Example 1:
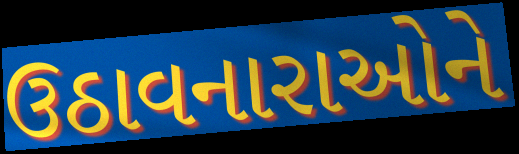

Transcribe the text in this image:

ઉઠાવનારાઓને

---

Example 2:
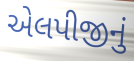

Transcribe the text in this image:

એલપીજીનું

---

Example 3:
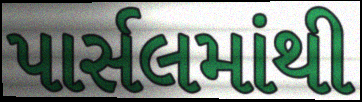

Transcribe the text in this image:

પાર્સલમાંથી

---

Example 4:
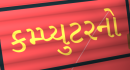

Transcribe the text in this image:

કમ્પ્યુટરનો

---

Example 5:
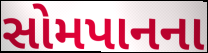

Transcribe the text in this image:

સોમપાનના